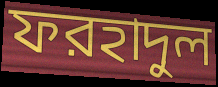
ফরহাদুল